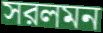
সরলমন